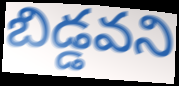
బిడ్డవని